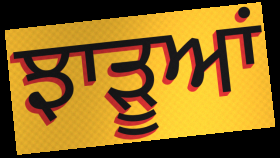
ਝਾੜੂਆਂ